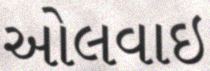
ઓલવાઇ